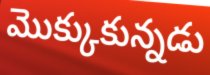
మొక్కుకున్నడు